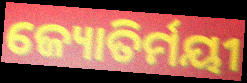
ଜ୍ୟୋତିର୍ମୟୀ